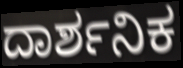
ದಾರ್ಶನಿಕ